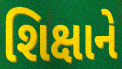
શિક્ષાને